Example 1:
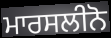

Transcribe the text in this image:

ਮਾਰਸਲੀਨੋ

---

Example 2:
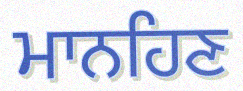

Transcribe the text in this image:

ਮਾਨਹਿਣ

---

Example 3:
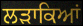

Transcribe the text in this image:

ਲੜਾਕਿਆਂ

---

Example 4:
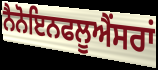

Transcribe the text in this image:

ਨੈਨੋਇਨਫਲੂਐਂਸਰਾਂ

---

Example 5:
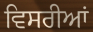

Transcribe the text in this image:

ਵਿਸਰੀਆਂ